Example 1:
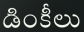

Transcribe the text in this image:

డింకీలు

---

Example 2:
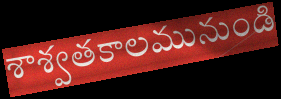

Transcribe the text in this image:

శాశ్వతకాలమునుండి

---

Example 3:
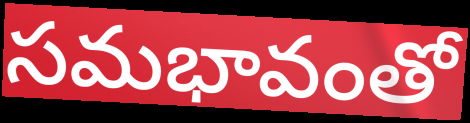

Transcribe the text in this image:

సమభావంతో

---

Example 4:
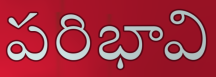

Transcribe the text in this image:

పరిభావి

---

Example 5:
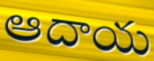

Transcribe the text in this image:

ఆదాయ